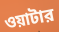
ওয়াটার